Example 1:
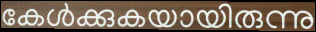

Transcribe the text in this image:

കേൾക്കുകയായിരുന്നു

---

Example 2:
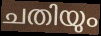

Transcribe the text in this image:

ചതിയും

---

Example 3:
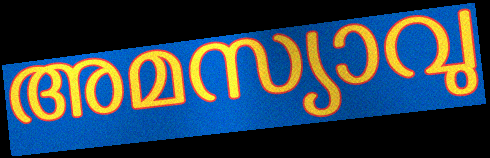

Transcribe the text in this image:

അമസ്യാവു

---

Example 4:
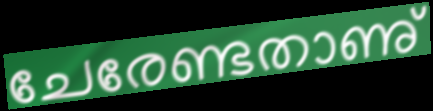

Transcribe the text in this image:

ചേരേണ്ടതാണു്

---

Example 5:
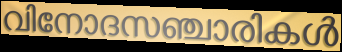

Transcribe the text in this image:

വിനോദസഞ്ചാരികൾ